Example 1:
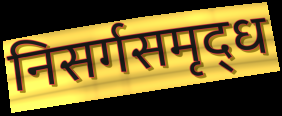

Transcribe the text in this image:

निसर्गसमृद्ध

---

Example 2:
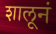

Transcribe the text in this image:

शालूनं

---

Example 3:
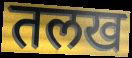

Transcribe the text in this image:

तलख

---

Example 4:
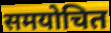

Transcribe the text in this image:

समयोचित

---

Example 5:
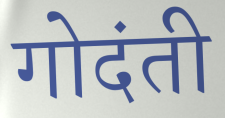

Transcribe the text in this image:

गोदंती